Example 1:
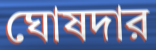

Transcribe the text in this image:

ঘোষদার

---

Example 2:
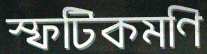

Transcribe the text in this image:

স্ফটিকমণি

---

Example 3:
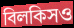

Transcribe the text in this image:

বিলকিসও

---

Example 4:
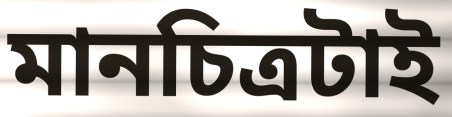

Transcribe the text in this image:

মানচিত্রটাই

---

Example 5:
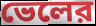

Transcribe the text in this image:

ভেলের